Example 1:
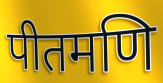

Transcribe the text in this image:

पीतमणि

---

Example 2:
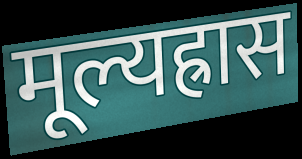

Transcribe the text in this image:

मूल्यह्रास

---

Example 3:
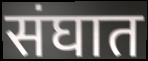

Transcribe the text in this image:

संघात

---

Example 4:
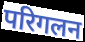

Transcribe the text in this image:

परिगलन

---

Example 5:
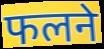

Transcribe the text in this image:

फलने